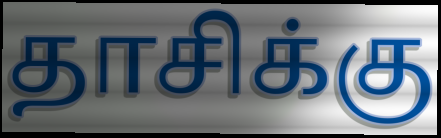
தாசிக்கு